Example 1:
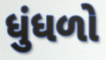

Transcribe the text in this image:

ધુંધળો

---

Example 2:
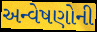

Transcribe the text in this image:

અન્વેષણોની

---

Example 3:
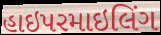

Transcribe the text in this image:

હાઇપરમાઇલિંગ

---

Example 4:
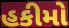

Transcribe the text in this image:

હકીમો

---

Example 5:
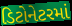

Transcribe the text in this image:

ડિટોનેટરમાં